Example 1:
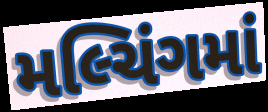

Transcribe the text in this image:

મલ્ચિંગમાં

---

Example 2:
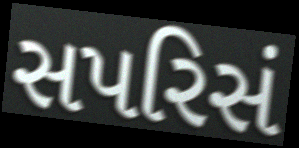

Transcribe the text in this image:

સપરિસં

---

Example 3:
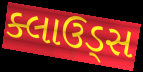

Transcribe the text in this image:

ક્લાઉડ્સ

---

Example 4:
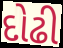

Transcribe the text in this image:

દોઢી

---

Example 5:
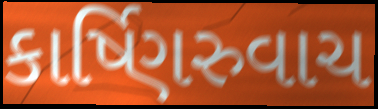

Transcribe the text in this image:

કાર્ષ્ણિરુવાચ